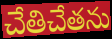
చేతిచేతను